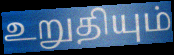
உறுதியும்